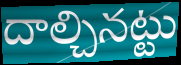
దాల్చినట్టు